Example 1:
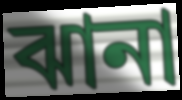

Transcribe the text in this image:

ঝানা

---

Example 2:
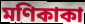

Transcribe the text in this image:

মণিকাকা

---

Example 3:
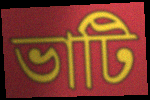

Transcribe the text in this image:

ভাটি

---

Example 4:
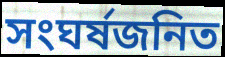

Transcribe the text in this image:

সংঘর্ষজনিত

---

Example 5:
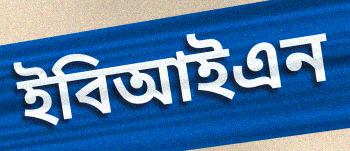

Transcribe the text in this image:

ইবিআইএন